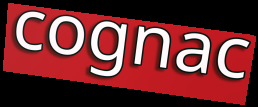
cognac